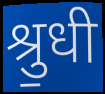
श्रु॒धी